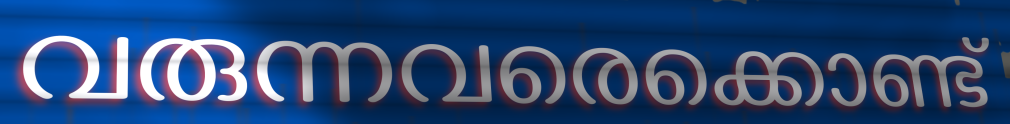
വരുന്നവരെക്കൊണ്ട്